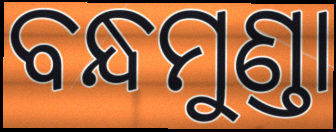
ବନ୍ଧମୁଣ୍ଡା